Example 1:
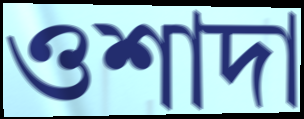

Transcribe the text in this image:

ওশাদা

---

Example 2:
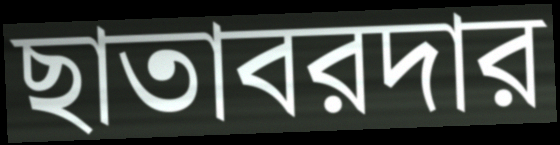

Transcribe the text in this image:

ছাতাবরদার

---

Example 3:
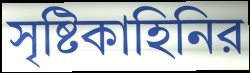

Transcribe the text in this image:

সৃষ্টিকাহিনির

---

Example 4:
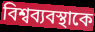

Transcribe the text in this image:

বিশ্বব্যবস্থাকে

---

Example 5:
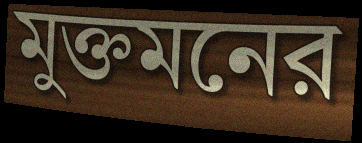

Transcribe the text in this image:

মুক্তমনের